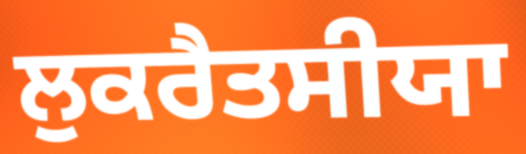
ਲੁਕਰੈਤਸੀਯਾ